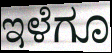
ಇಳೆಗೂ